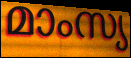
മാംസ്യ